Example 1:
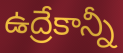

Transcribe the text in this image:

ఉద్రేకాన్నీ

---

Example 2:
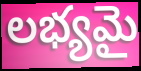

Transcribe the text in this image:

లభ్యమై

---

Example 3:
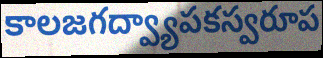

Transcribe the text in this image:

కాలజగద్వ్యాపకస్వరూప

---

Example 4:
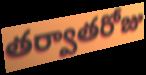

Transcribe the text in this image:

తర్వాతరోజు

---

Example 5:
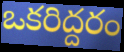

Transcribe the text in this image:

ఒకరిద్దరం